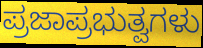
ಪ್ರಜಾಪ್ರಭುತ್ವಗಳು